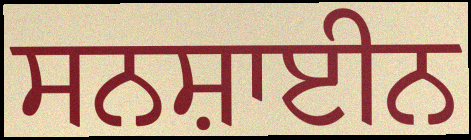
ਸਨਸ਼ਾਈਨ